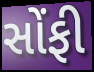
સોંફી